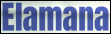
Elamana